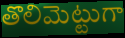
తొలిమెట్టుగా